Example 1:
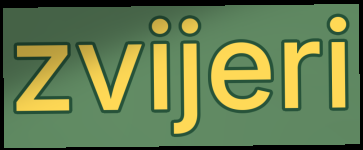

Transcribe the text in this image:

zvijeri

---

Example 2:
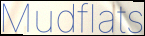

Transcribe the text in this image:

Mudflats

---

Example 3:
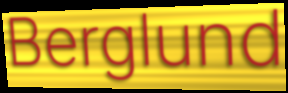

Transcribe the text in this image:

Berglund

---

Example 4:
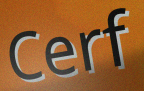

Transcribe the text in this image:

Cerf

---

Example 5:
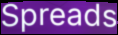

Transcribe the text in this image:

Spreads